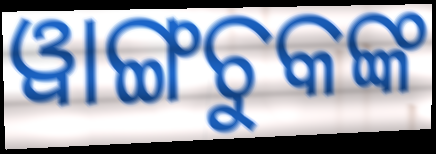
ୱାଙ୍ଗଚୁକଙ୍କ